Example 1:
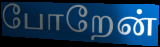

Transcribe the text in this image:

போறேன்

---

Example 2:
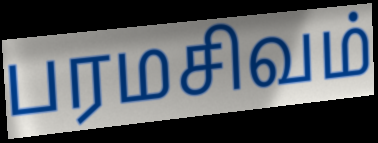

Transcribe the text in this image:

பரமசிவம்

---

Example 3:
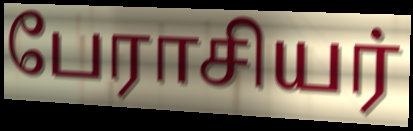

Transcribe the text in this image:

பேராசியர்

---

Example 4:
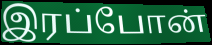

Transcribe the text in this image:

இரப்போன்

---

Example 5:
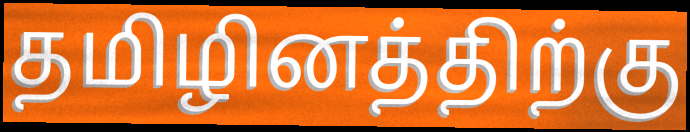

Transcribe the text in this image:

தமிழினத்திற்கு